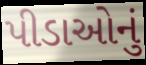
પીડાઓનું